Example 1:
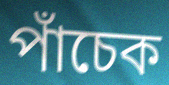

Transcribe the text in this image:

পাঁচেক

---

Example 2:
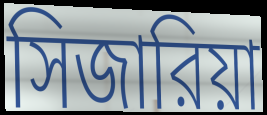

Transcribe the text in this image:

সিজারিয়া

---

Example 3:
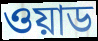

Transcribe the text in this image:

ওয়াড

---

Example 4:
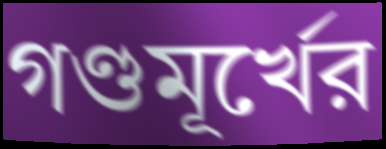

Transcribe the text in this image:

গণ্ডমূর্খের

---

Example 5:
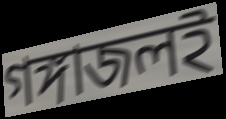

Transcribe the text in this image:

গঙ্গাজলই